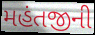
મહંતજીની